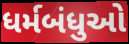
ધર્મબંધુઓ